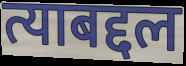
त्याबद्दल